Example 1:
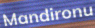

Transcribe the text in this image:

Mandironu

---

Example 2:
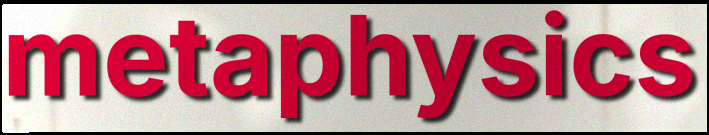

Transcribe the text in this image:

metaphysics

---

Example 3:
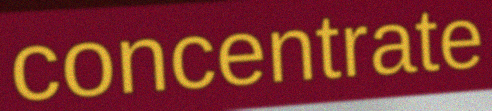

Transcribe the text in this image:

concentrate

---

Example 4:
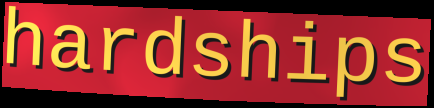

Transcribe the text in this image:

hardships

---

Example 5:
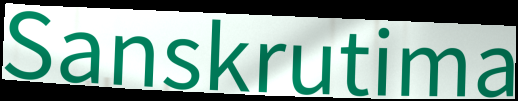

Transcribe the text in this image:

Sanskrutima